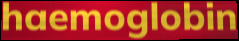
haemoglobin